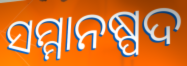
ସମ୍ମାନଷ୍ପଦ